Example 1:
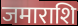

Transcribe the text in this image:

जमाराशि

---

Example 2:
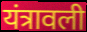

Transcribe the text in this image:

यंत्रावली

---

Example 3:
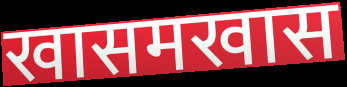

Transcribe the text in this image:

खासमखास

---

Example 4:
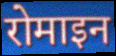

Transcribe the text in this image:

रोमाइन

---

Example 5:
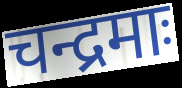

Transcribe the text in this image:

चन्द्रमाः